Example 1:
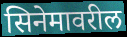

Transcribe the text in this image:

सिनेमावरील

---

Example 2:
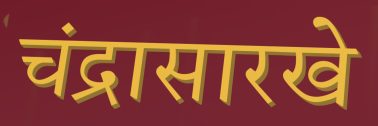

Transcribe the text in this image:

चंद्रासारखे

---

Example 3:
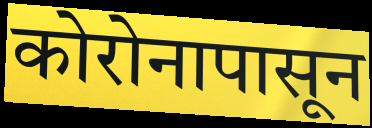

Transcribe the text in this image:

कोरोनापासून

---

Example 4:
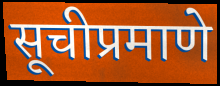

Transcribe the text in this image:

सूचीप्रमाणे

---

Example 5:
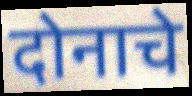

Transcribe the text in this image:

दोनाचे